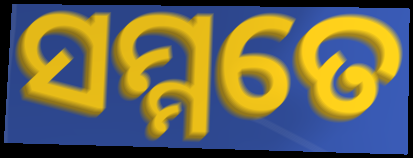
ସମ୍ମତେ